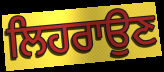
ਲਿਹਰਾਉਣ